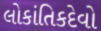
લોકાંતિકદેવો